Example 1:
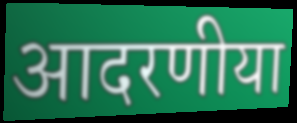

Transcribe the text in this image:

आदरणीया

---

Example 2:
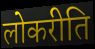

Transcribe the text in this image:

लोकरीति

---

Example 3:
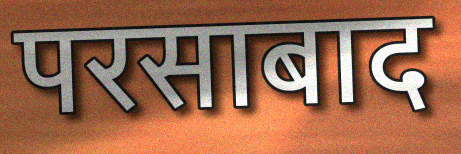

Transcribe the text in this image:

परसाबाद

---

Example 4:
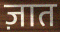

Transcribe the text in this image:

ज़ात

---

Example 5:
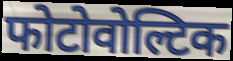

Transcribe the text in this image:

फोटोवोल्टिक